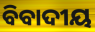
ବିବାଦୀୟ